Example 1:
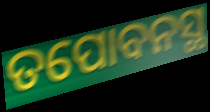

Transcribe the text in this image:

ତପୋବନସ୍ଥ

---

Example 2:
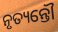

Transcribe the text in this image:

ନୃତ୍ୟନ୍ତୌ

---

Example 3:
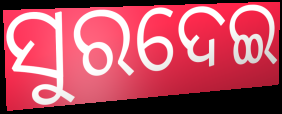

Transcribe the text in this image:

ସୁରଦେଇ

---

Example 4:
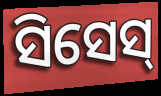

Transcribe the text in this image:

ସିସେସ୍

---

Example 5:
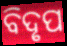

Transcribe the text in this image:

ବିଦୃପ